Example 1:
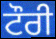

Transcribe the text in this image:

ਟੌਰੀ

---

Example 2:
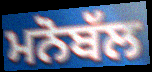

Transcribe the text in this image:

ਮਨੋਬੱਲ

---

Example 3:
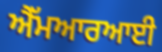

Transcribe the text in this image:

ਐੱਮਆਰਆਈ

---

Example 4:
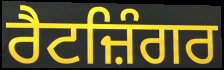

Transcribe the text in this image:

ਰੈਟਜ਼ਿੰਗਰ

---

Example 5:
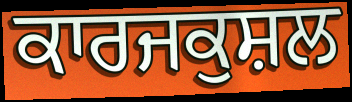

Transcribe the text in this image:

ਕਾਰਜਕੁਸ਼ਲ